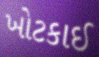
ખોટકાઈ